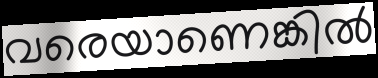
വരെയാണെങ്കിൽ